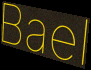
Bael